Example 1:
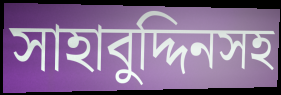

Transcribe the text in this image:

সাহাবুদ্দিনসহ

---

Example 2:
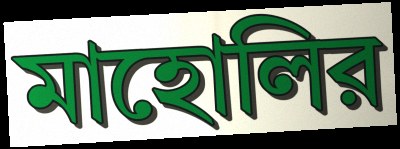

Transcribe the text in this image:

মাহোলির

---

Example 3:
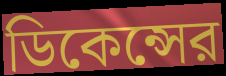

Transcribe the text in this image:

ডিকেন্সের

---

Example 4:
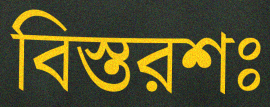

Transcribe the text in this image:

বিস্তরশঃ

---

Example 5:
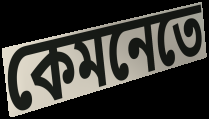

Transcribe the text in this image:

কেমনেতে